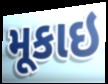
મૂકાઇ